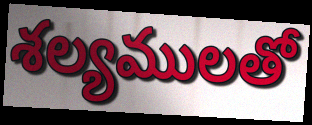
శల్యములతో